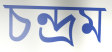
চন্দ্রম